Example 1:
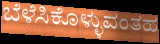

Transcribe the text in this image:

ಬೆಳೆಸಿಕೊಳ್ಳುವಂತಹ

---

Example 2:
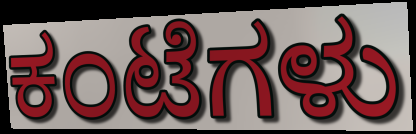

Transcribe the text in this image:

ಕಂಟೆಗಳು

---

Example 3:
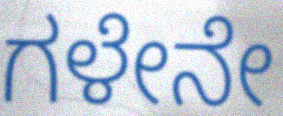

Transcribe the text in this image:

ಗಳೇನೇ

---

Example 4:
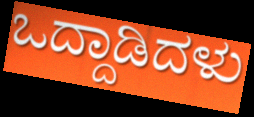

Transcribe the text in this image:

ಒದ್ದಾಡಿದಳು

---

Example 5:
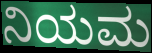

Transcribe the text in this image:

ನಿಯಮ